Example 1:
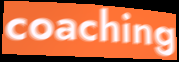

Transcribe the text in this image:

coaching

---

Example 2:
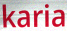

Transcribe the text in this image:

karia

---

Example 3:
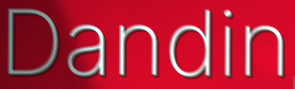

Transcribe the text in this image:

Dandin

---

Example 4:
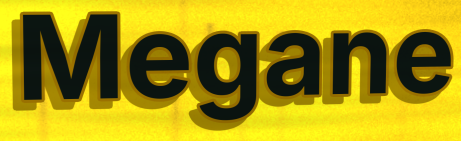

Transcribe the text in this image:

Megane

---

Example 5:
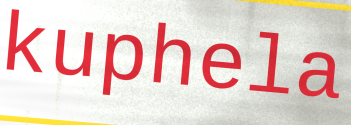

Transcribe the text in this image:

kuphela